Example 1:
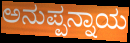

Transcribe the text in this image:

ಅನುಪ್ಪನ್ನಾಯ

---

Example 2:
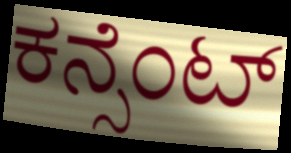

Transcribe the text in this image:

ಕನ್ಸೆಂಟ್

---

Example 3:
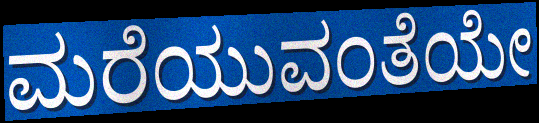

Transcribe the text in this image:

ಮರೆಯುವಂತೆಯೇ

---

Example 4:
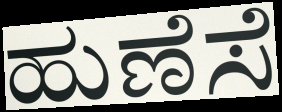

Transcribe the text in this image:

ಹುಣೆಸೆ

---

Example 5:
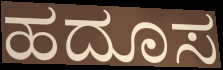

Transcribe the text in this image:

ಹದೂಸ